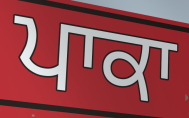
ਪਾਕਾ